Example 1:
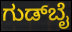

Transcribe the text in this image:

ಗುಡ್‌ಬೈ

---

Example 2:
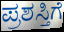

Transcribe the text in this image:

ಪ್ರಶಸ್ತಿಗೆ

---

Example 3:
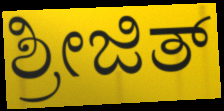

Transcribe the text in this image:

ಶ್ರೀಜಿತ್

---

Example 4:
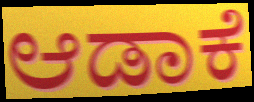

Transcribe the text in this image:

ಆಡಾಕೆ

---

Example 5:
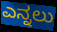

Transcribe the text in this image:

ಎನ್ನಲು